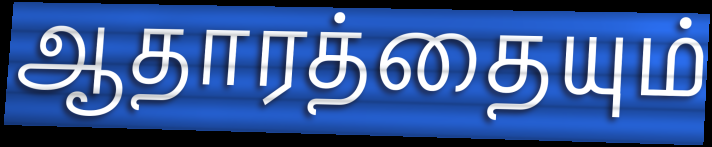
ஆதாரத்தையும்